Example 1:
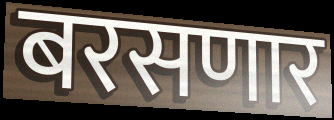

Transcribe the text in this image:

बरसणार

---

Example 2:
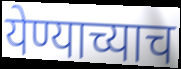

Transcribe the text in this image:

येण्याच्याच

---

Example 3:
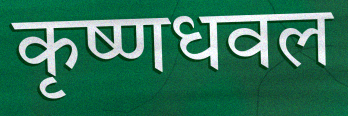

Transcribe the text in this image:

कृष्णधवल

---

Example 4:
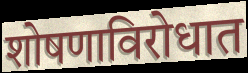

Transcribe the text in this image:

शोषणाविरोधात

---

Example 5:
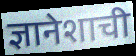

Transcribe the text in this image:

ज्ञानेशाची